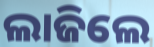
ଲାଜିଲେ